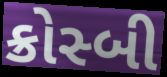
ક્રોસ્બી